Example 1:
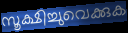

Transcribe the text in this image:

സൂക്ഷിച്ചുവെക്കുക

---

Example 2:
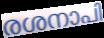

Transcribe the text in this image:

രശനാപി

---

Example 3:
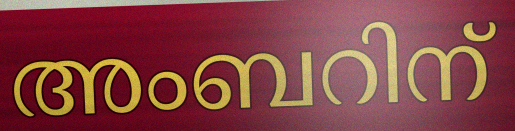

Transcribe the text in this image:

അംബറിന്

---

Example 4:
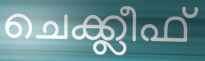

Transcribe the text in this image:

ചെക്ക്ലീഫ്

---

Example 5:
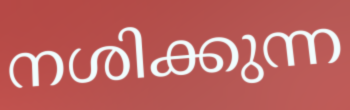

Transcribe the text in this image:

നശിക്കുന്ന